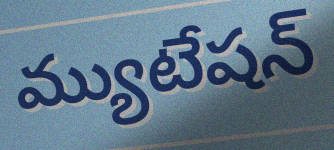
మ్యుటేషన్